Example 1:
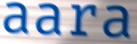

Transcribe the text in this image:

aara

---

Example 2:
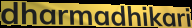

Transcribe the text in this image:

dharmadhikari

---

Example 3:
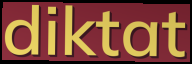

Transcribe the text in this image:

diktat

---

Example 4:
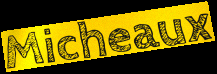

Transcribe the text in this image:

Micheaux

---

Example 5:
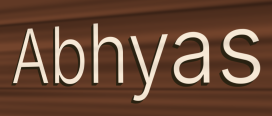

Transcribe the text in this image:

Abhyas